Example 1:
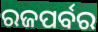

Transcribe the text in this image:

ରଜପର୍ବର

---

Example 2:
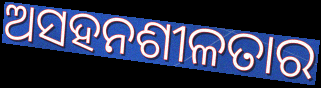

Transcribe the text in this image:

ଅସହନଶୀଳତାର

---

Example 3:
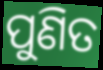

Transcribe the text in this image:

ପୁଣିତ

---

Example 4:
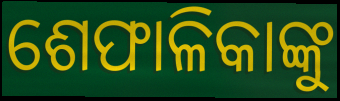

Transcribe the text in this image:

ଶେଫାଳିକାଙ୍କୁ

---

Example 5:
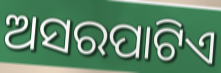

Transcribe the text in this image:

ଅସରପାଟିଏ